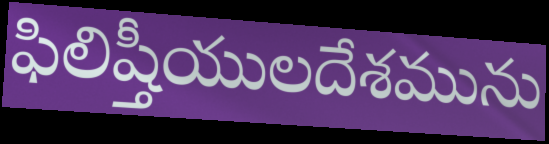
ఫిలిష్తీయులదేశమును